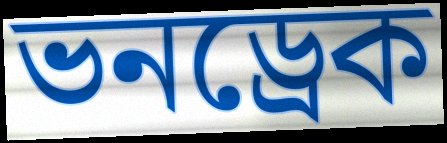
ভনড্রেক